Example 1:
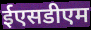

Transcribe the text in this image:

ईएसडीएम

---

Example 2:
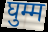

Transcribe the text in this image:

घुम्म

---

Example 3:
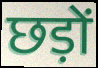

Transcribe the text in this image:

छड़ों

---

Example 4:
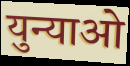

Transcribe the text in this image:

युन्याओ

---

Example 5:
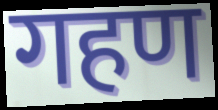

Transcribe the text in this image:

गहण